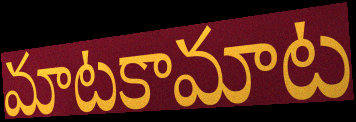
మాటకామాట